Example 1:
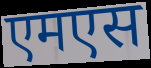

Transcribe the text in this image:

एमएस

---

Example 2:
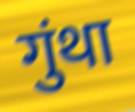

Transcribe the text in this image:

गुंथा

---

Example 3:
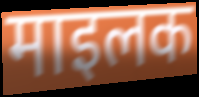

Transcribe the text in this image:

माइलक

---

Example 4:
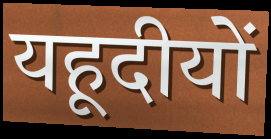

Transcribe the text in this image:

यहूदीयों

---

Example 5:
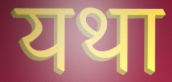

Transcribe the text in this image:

यथा